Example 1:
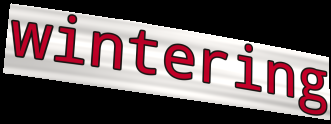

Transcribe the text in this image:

wintering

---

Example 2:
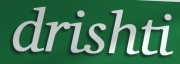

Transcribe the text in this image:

drishti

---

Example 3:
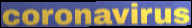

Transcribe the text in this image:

coronavirus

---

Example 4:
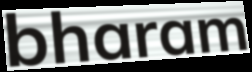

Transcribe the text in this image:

bharam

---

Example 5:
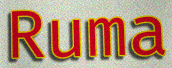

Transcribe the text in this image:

Ruma